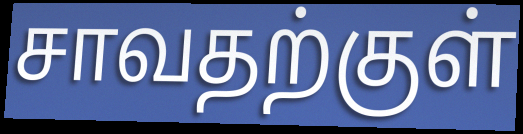
சாவதற்குள்